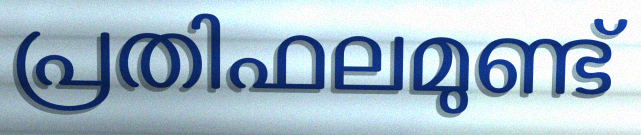
പ്രതിഫലമുണ്ട്